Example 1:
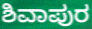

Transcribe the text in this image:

ಶಿವಾಪುರ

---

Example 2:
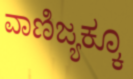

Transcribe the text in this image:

ವಾಣಿಜ್ಯಕ್ಕೂ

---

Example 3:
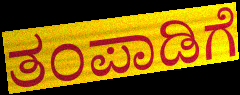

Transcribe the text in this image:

ತಂಪಾಡಿಗೆ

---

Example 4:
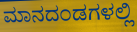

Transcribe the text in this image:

ಮಾನದಂಡಗಳಲ್ಲಿ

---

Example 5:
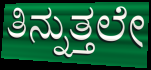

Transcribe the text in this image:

ತಿನ್ನುತ್ತಲೇ